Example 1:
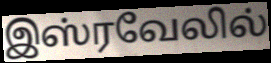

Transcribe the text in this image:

இஸ்ரவேலில்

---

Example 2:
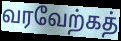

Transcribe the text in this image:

வரவேற்கத்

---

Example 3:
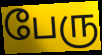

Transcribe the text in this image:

பேரு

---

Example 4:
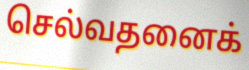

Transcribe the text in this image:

செல்வதனைக்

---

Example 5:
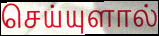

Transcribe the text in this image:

செய்யுளால்